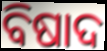
ବିଷାଦ